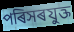
পৰিসৰযুক্ত